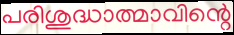
പരിശുദ്ധാത്മാവിന്റെ